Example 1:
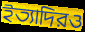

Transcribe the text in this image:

ইত্যাদিরও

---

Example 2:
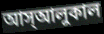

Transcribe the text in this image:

আস্আলুকাল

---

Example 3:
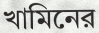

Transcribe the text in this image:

খামিনের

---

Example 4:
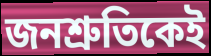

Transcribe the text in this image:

জনশ্রুতিকেই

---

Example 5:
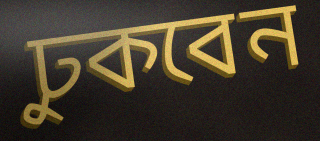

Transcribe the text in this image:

ঢুকবেন